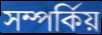
সম্পৰ্কিয়